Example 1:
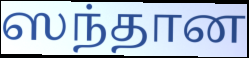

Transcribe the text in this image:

ஸந்தான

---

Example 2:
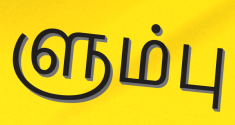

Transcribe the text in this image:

ளும்பு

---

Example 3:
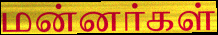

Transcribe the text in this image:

மன்னர்கள்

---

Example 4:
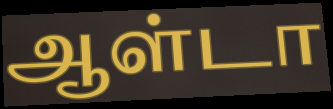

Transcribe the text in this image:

ஆள்டா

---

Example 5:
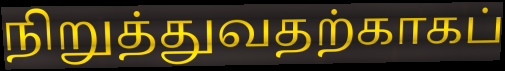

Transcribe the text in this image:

நிறுத்துவதற்காகப்